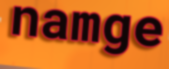
namge